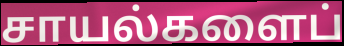
சாயல்களைப்